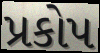
પ્રકોપ